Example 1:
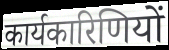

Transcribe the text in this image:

कार्यकारिणियों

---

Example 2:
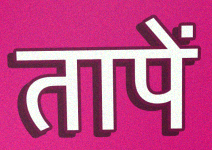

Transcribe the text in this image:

तापें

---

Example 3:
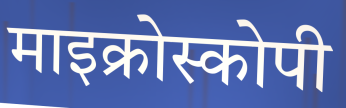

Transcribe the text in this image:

माइक्रोस्कोपी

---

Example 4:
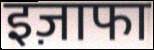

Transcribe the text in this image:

इज़ाफा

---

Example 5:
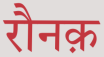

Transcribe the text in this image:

रौनक़